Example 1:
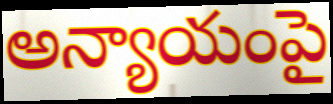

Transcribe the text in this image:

అన్యాయంపై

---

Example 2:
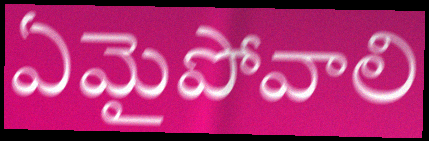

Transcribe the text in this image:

ఏమైపోవాలి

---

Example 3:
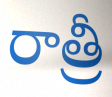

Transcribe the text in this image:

రాత్రీ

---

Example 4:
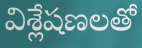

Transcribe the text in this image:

విశ్లేషణలతో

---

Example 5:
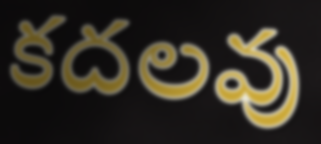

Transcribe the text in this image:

కదలవు